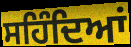
ਸਹਿੰਦਿਆਂ